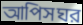
আপিসঘর